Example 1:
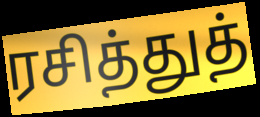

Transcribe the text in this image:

ரசித்துத்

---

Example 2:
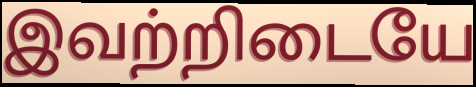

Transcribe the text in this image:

இவற்றிடையே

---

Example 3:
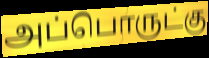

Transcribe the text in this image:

அப்பொருட்கு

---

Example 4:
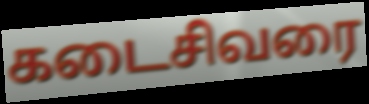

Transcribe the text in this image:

கடைசிவரை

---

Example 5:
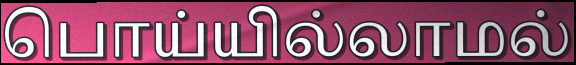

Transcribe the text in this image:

பொய்யில்லாமல்